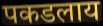
पकडलाय